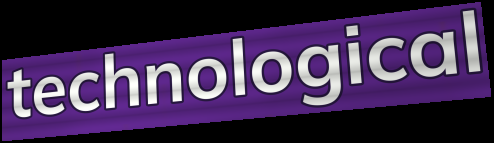
technological